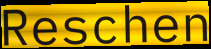
Reschen